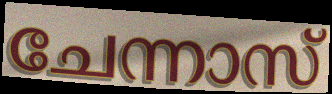
ചേന്നാസ്